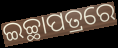
ଇଚ୍ଛାପତ୍ରରେ